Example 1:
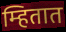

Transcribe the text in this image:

म्हितात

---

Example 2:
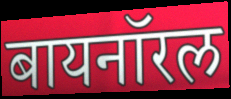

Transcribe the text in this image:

बायनॉरल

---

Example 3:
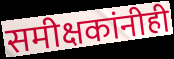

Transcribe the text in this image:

समीक्षकांनीही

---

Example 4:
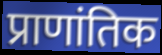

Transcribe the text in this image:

प्राणांतिक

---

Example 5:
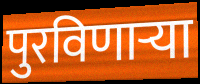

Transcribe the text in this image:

पुरविणार्‍या